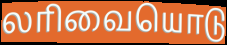
லரிவையொடு